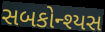
સબકોન્શ્યસ